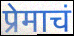
प्रेमाचं